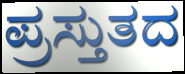
ಪ್ರಸ್ತುತದ